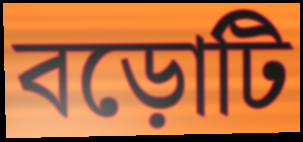
বড়োটি